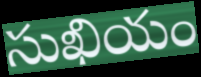
సుఖియం